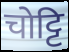
चोट्टि